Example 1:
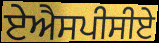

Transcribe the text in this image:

ਏਐਸਪੀਸੀਏ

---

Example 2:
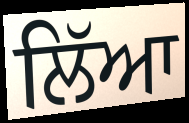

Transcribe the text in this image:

ਲਿੱਆ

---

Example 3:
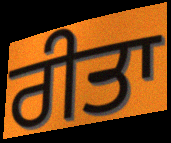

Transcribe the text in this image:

ਰੀਤਾ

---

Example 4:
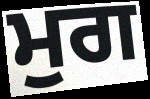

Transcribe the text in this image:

ਮੁਗ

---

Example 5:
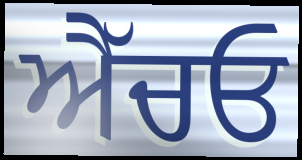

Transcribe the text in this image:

ਐੱਚਓ